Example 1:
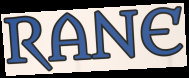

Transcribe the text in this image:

RANE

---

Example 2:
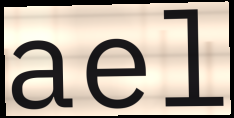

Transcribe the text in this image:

ael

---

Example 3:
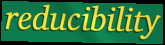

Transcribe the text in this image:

reducibility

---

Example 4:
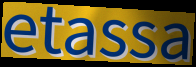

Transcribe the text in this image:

etassa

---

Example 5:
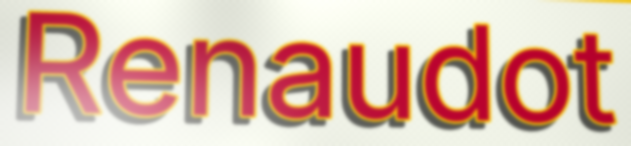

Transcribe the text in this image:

Renaudot